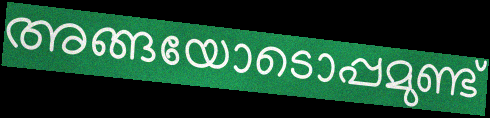
അങ്ങയോടൊപ്പമുണ്ട്